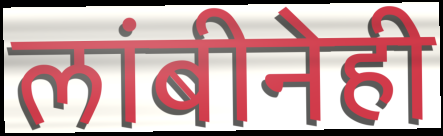
लांबीनेही